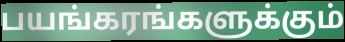
பயங்கரங்களுக்கும்